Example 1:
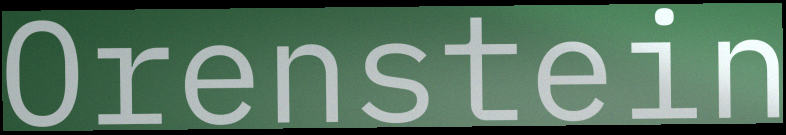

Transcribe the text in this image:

Orenstein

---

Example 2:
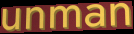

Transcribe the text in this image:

unman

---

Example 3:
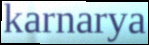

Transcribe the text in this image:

karnarya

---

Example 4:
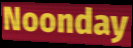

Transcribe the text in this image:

Noonday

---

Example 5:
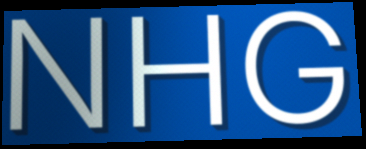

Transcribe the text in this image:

NHG